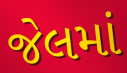
જેલમાં